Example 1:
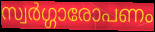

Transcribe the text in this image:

സ്വർഗ്ഗാരോപണം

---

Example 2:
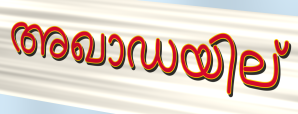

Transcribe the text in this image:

അഖാഡയില്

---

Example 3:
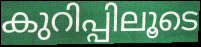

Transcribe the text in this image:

കുറിപ്പിലൂടെ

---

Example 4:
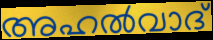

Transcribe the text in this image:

അഹൽവാദ്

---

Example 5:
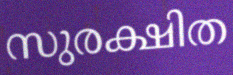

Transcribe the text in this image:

സുരക്ഷിത